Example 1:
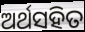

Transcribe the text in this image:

ଅର୍ଥସହିତ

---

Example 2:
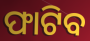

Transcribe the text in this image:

ଫାଟିବ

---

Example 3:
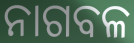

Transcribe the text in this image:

ନାଗବଳ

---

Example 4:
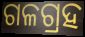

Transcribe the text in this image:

ଗଳଗ୍ରହ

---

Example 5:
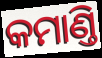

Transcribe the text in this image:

କମାଣ୍ତି